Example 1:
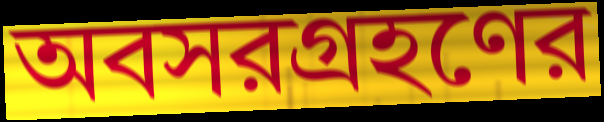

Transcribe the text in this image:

অবসরগ্রহণের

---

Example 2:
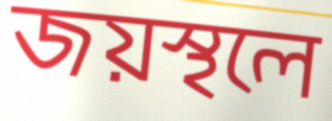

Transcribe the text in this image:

জয়স্থলে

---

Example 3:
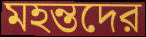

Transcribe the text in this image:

মহন্তদের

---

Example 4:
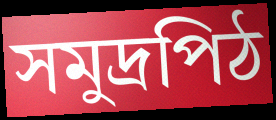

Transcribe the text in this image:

সমুদ্রপিঠ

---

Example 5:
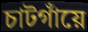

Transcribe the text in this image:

চাটগাঁয়ে